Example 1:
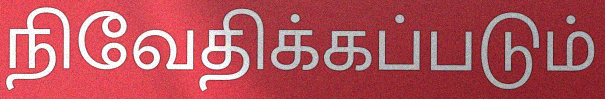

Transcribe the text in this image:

நிவேதிக்கப்படும்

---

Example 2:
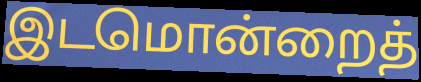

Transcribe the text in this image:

இடமொன்றைத்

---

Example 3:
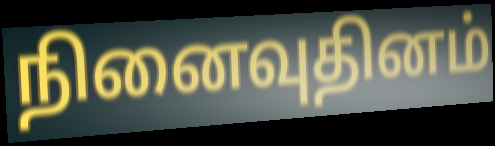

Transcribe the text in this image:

நினைவுதினம்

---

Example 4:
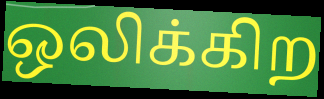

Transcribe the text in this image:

ஒலிக்கிற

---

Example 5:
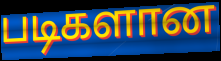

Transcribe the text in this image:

படிகளான